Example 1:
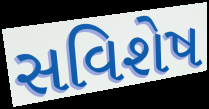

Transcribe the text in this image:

સવિશેષ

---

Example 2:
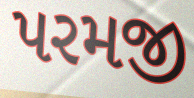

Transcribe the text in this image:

પરમજી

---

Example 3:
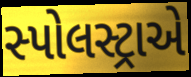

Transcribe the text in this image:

સ્પોલસ્ટ્રાએ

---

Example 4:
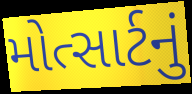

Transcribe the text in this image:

મોત્સાર્ટનું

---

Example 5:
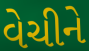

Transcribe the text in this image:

વેચીને